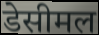
डेसीमल